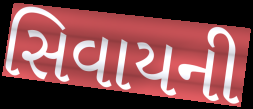
સિવાયની